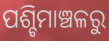
ପଶ୍ଚିମାଞ୍ଚଳରୁ